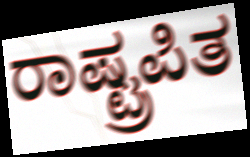
ರಾಷ್ಟ್ರಪಿತ